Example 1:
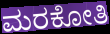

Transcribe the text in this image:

ಮರಕೋತಿ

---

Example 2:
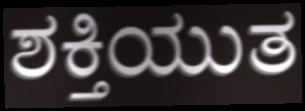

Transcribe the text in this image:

ಶಕ್ತಿಯುತ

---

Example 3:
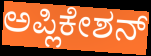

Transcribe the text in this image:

ಅಪ್ಲಿಕೇಶನ್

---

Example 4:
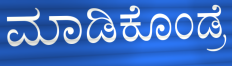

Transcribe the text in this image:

ಮಾಡಿಕೊಂಡ್ರೆ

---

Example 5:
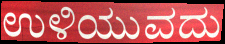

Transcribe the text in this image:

ಉಳಿಯುವದು